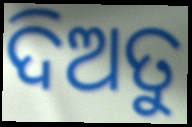
ଦିଅତୁ